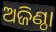
ଅଜିଣ୍ଠା